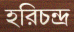
হরিচন্দ্র